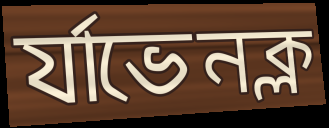
র্যাভেনক্ল